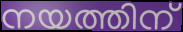
നയത്തിന്